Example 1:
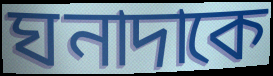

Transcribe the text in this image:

ঘনাদাকে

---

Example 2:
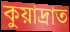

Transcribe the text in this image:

কুয়াদ্রাত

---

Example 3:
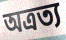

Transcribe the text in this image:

অত্রত্য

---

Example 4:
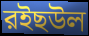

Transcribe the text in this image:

রইছউল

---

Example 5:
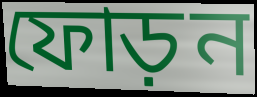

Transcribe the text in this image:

ফোড়ন